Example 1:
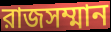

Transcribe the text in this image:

রাজসম্মান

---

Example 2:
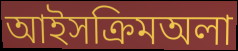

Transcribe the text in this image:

আইসক্রিমঅলা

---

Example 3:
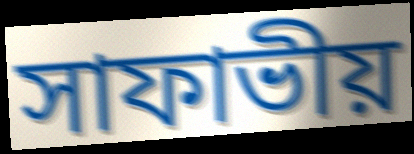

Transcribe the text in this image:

সাফাভীয়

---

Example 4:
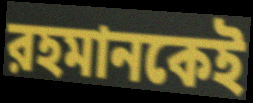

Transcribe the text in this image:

রহমানকেই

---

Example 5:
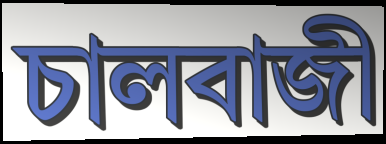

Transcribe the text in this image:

চালবাজী